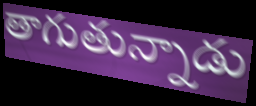
తాగుతున్నాడు